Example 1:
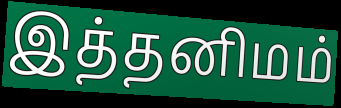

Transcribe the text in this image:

இத்தனிமம்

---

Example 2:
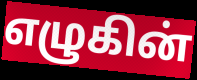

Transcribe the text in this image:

எழுகின்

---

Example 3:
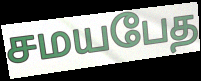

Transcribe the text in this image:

சமயபேத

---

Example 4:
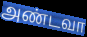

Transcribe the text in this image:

அண்டவா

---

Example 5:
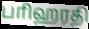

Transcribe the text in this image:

பரிஹரதி